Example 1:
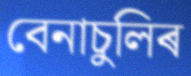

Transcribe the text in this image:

বেনাচুলিৰ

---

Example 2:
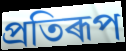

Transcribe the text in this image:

প্ৰতিৰূপ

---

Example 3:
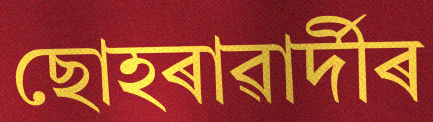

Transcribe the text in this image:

ছোহৰাৱাৰ্দীৰ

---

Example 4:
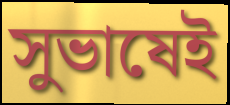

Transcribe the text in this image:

সুভাষেই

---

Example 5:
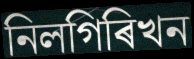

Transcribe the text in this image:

নিলগিৰিখন